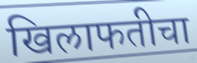
खिलाफतीचा